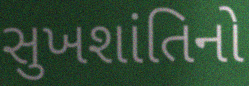
સુખશાંતિનો